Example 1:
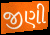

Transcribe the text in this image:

જીણી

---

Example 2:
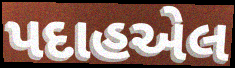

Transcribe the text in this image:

પદાહએલ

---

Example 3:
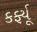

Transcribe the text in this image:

કર્ફ્યૂ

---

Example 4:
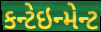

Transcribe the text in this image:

કન્ટેઇન્મેન્ટ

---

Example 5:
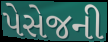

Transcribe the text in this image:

પેસેજની